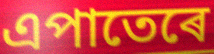
এপাতেৰে